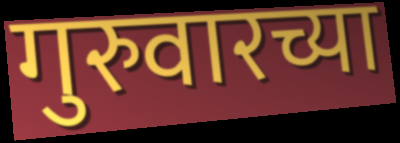
गुरुवारच्या